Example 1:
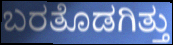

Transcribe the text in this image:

ಬರತೊಡಗಿತ್ತು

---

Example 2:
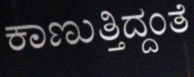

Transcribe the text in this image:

ಕಾಣುತ್ತಿದ್ದಂತೆ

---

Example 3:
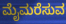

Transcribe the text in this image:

ಮೈಮರೆಸುವ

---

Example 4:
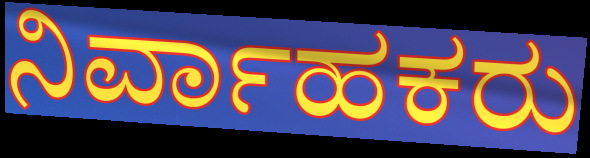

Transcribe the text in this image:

ನಿರ್ವಾಹಕರು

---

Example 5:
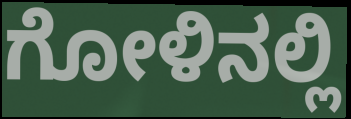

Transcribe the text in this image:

ಗೋಳಿನಲ್ಲಿ